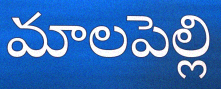
మాలపెల్లి